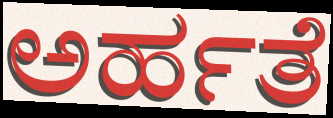
ಅರ್ಹತೆ